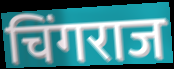
चिंगराज